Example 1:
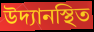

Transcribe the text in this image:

উদ্যানস্থিত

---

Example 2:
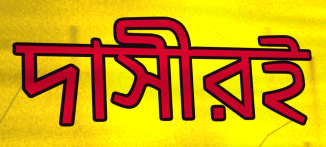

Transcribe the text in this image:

দাসীরই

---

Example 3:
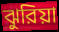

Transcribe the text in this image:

ঝুরিয়া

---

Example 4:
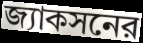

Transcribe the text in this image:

জ্যাকসনের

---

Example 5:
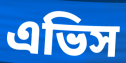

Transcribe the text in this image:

এভিস